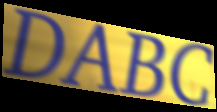
DABC